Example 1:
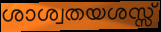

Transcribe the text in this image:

ശാശ്വതയശസ്സ്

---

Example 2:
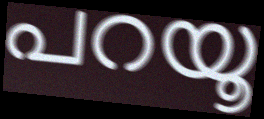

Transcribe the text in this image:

പറയൂ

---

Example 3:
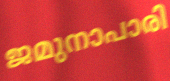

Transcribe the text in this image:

ജമുനാപാരി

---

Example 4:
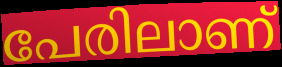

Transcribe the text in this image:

പേരിലാണ്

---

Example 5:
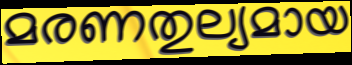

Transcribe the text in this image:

മരണതുല്യമായ